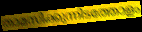
താമസിക്കുന്നിടത്തോളം